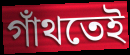
গাঁথতেই